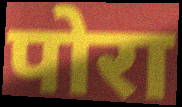
पोरा